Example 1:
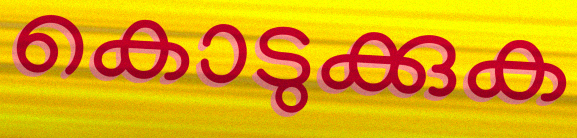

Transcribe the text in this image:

കൊടുക്കുക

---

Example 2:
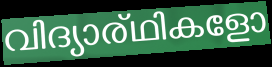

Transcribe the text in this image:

വിദ്യാര്ഥികളോ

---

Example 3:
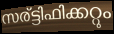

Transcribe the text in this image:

സര്ട്ടിഫിക്കറ്റും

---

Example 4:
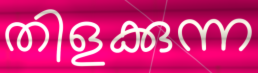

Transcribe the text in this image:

തിളക്കുന്ന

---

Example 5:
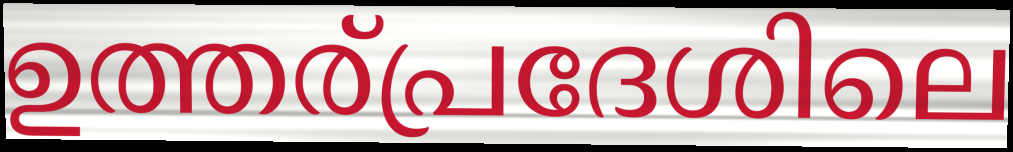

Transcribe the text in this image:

ഉത്തര്പ്രദേശിലെ